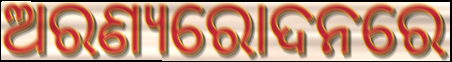
ଅରଣ୍ୟରୋଦନରେ